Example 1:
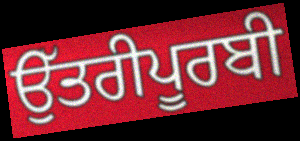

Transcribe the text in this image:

ਉੱਤਰੀਪੂਰਬੀ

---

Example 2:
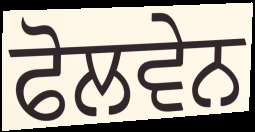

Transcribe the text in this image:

ਫੋਲਵੇਨ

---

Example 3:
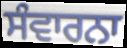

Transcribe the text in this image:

ਸੰਵਾਰਨਾ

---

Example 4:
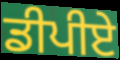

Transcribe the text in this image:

ਡੀਪੀਏ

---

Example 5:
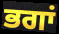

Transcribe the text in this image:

ਭਗਾਂ